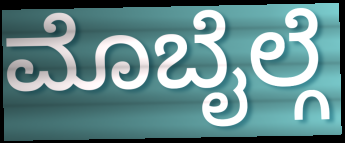
ಮೊಬೈಲ್ಗೆ